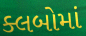
ક્લબોમાં